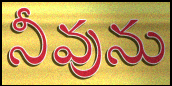
నీవును